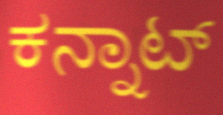
ಕನ್ನಾಟ್